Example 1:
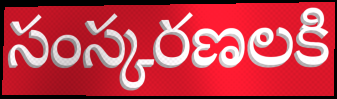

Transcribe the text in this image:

సంస్కరణలకి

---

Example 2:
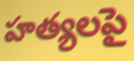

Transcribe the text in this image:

హత్యలపై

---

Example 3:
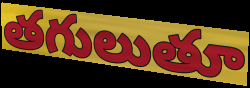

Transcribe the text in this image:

తగులుతూ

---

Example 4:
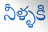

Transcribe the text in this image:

నీళ్ళకి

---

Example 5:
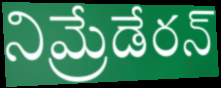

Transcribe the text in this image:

నిమ్రేడేరన్